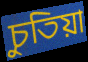
চুতিয়া